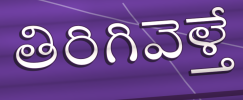
తిరిగివెళ్తే